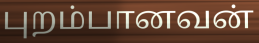
புறம்பானவன்